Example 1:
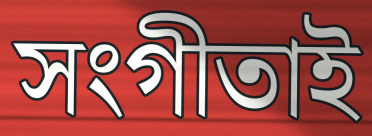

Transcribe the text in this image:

সংগীতাই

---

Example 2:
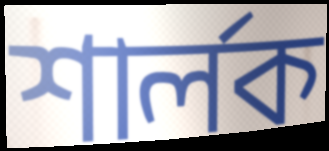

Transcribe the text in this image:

শার্লক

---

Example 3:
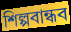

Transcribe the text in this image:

শিল্পবান্ধব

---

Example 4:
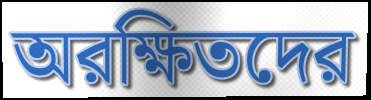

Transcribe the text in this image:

অরক্ষিতদের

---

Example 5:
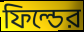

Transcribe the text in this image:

ফিল্ডের